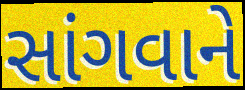
સાંગવાને